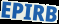
EPIRB